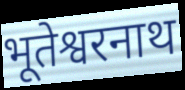
भूतेश्वरनाथ